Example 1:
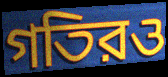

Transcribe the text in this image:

গতিরও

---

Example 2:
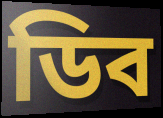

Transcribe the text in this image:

ডিব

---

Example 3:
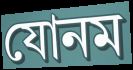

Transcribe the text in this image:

যোনম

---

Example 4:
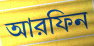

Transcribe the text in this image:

আরফিন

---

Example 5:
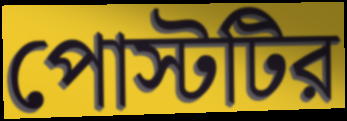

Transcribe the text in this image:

পোস্টটির